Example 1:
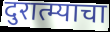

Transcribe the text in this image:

दुरात्म्याचा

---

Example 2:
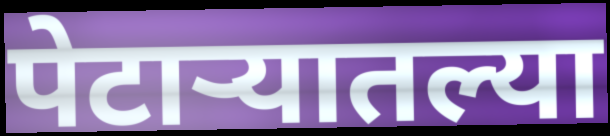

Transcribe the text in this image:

पेटाऱ्यातल्या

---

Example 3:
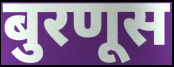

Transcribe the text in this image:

बुरणूस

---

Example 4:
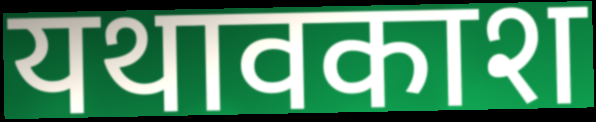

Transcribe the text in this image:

यथावकाश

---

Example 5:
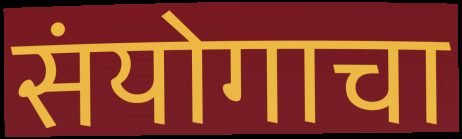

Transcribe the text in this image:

संयोगाचा